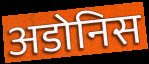
अडोनिस